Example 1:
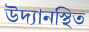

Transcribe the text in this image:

উদ্যানস্থিত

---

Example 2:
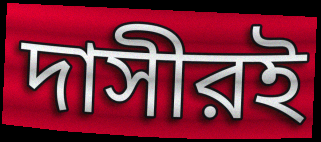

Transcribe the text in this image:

দাসীরই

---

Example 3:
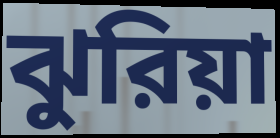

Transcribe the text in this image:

ঝুরিয়া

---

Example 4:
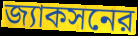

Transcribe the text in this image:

জ্যাকসনের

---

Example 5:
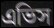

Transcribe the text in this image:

এভিস